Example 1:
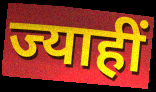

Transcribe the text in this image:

ज्याहीं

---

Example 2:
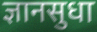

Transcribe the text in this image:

ज्ञानसुधा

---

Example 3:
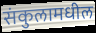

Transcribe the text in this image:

संकुलामधील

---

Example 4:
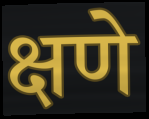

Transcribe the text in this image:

क्षणे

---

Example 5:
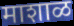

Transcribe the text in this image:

माशाळ